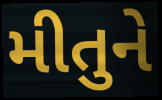
મીતુને